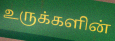
உருக்களின்